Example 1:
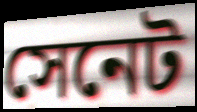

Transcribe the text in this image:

সেনেট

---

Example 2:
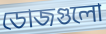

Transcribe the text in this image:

ডোজগুলো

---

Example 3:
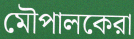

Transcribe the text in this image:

মৌপালকেরা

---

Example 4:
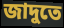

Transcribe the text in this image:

জাদুতে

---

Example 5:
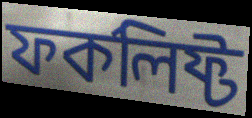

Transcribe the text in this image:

ফর্কলিফ্ট